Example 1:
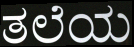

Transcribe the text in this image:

ತಲೆಯ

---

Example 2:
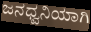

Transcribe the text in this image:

ಜನಧ್ವನಿಯಾಗಿ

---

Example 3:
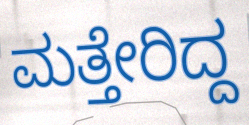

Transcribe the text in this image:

ಮತ್ತೇರಿದ್ದ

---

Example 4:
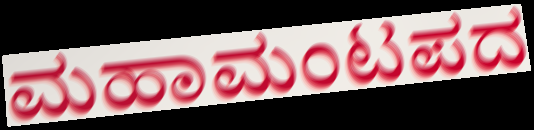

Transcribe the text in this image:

ಮಹಾಮಂಟಪದ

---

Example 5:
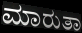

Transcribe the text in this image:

ಮಾರುತಾ